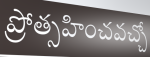
ప్రోత్సహించవచ్చో